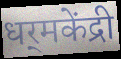
धर्मकेंद्री